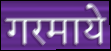
गरमाये